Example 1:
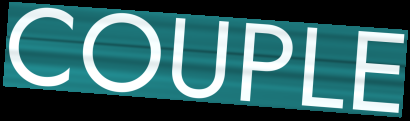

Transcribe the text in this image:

COUPLE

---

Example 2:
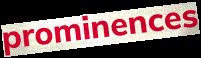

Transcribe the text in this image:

prominences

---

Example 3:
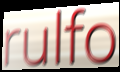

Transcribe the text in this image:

rulfo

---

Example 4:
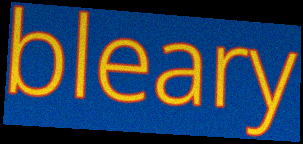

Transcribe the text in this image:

bleary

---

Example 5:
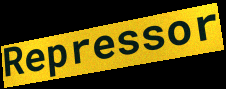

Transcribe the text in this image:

Repressor